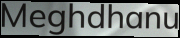
Meghdhanu